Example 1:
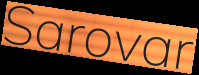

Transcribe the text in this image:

Sarovar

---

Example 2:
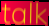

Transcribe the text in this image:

talk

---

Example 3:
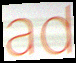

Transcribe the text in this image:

ad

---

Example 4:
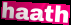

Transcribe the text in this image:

haath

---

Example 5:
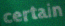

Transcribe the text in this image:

certain